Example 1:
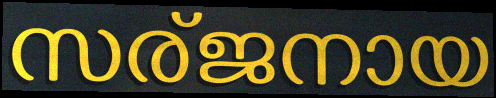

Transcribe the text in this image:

സര്ജനായ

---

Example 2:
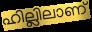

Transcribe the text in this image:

ഹില്ലിലാണ്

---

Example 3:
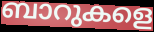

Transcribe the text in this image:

ബാറുകളെ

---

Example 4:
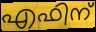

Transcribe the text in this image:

എഫിന്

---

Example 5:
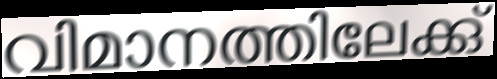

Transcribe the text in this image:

വിമാനത്തിലേക്കു്